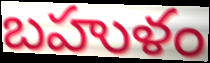
బహుళం